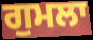
ਗੁਮਲਾ